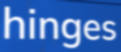
hinges